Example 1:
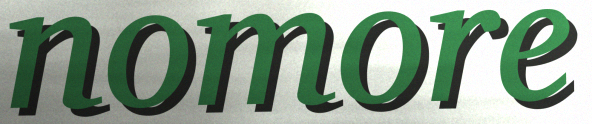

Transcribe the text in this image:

nomore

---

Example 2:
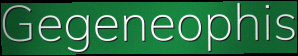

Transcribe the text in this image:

Gegeneophis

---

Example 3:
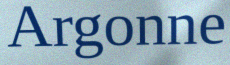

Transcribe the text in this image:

Argonne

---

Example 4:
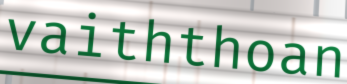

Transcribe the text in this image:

vaiththoan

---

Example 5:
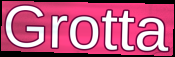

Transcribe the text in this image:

Grotta